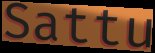
Sattu